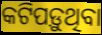
କଟିପଡ଼ୁଥିବା